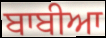
ਬਾਬੀਆ